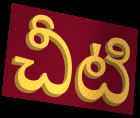
చీటి